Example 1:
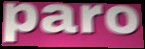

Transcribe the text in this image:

paro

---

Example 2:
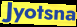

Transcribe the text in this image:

Jyotsna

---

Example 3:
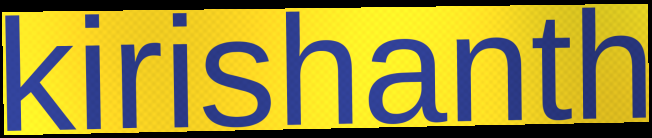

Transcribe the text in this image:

kirishanth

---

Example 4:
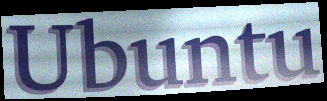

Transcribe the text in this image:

Ubuntu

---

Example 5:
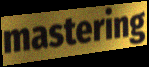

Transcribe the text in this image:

mastering